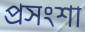
প্ৰসংশা